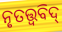
ନୃତତ୍ତ୍ଵବିଦ୍